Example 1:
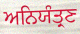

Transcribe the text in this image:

ਅਨਿਯੰਤ੍ਰਣ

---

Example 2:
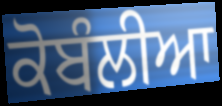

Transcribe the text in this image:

ਕੋਬੰਲੀਆ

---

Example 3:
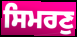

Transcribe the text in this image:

ਸਿਮਰਣੁ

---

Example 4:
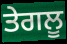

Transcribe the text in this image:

ਤੇਗਲੂ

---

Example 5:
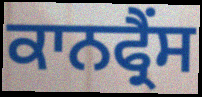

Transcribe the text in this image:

ਕਾਨਫ੍ਰੈਂਸ